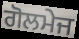
ਗੋਲਮੇਜ